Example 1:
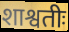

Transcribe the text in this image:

शाश्वतीः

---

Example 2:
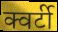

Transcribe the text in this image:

क्वर्टी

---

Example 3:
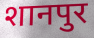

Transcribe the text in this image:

शानपुर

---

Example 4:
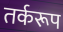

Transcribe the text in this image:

तर्करूप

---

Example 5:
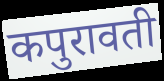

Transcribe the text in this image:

कपुरावती